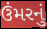
ઉંમરનું